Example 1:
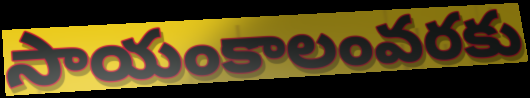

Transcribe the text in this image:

సాయంకాలంవరకు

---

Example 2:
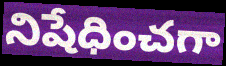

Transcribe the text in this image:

నిషేధించగా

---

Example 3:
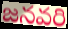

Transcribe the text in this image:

జనవరి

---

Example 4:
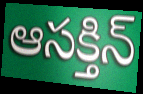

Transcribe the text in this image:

ఆసక్తిన్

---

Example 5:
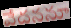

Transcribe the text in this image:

వేదననూ